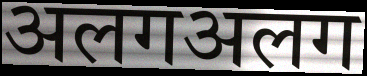
अलगअलग